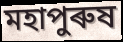
মহাপুৰুষ